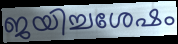
ജയിച്ചശേഷം